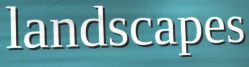
landscapes